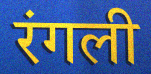
रंगली